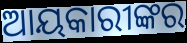
ଆୟକାରୀଙ୍କର